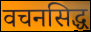
वचनसिद्ध